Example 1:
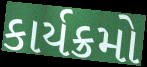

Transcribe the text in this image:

કાર્યક્રમો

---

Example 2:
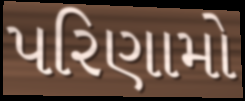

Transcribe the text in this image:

પરિણામો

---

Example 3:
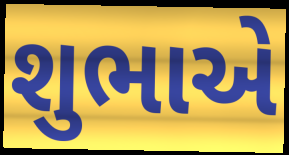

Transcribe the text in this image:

શુભાએ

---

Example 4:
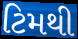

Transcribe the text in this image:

ટિમથી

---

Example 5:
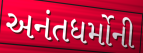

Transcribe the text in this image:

અનંતધર્મોની